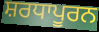
ਸ਼ਰਧਾਪੂਰਨ